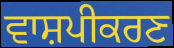
ਵਾਸ਼ਪੀਕਰਣ